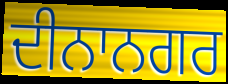
ਦੀਨਾਨਗਰ